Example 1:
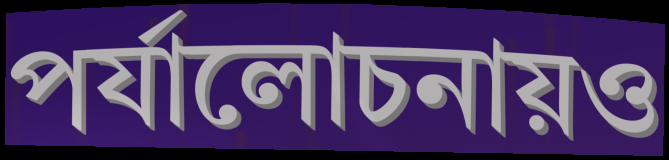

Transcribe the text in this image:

পর্যালোচনায়ও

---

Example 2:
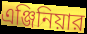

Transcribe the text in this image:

এঞ্জিনিয়ার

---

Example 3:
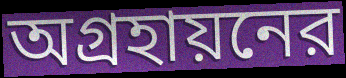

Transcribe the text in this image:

অগ্রহায়নের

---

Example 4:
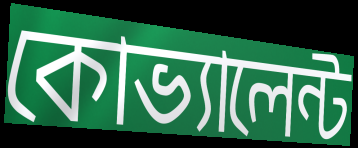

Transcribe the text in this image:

কোভ্যালেন্ট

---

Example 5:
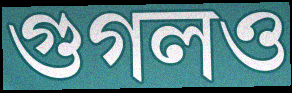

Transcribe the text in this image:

গুগলও